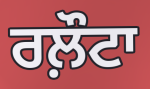
ਰਲ਼ੌਟਾ